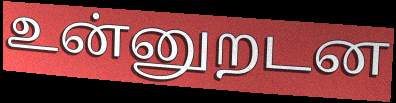
உன்னுறடன